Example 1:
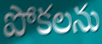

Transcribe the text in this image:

పోకలను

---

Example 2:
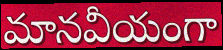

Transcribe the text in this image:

మానవీయంగా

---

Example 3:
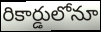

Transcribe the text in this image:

రికార్డులోనూ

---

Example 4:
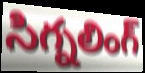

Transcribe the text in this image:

సిగ్నలింగ్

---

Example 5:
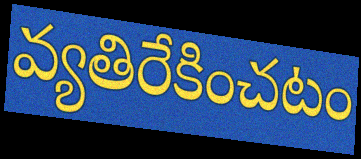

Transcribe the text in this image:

వ్యతిరేకించటం